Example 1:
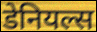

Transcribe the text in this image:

डेनियल्स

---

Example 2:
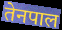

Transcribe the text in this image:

तेनपाल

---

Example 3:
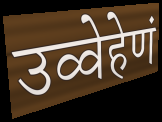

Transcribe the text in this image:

उव्वेहेणं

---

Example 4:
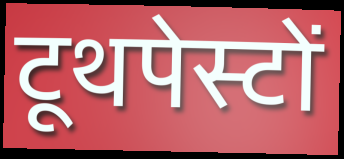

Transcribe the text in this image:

टूथपेस्टों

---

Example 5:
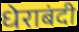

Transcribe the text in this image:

धेराबंदी